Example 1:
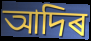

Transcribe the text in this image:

আদিৰ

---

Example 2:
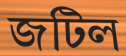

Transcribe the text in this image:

জটিল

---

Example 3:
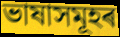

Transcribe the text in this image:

ভাষাসমূহৰ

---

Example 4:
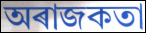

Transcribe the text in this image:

অৰাজকতা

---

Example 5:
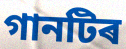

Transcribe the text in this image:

গানটিৰ